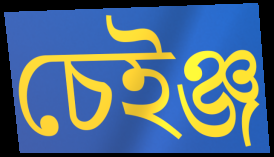
চেইঞ্জ